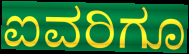
ಐವರಿಗೂ